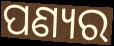
ପଣ୍ୟର